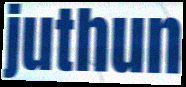
juthun